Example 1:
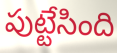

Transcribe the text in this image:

పుట్టేసింది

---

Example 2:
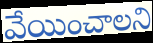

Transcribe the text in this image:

వేయించాలని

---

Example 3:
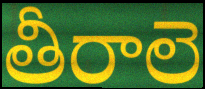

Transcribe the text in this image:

తీరాలె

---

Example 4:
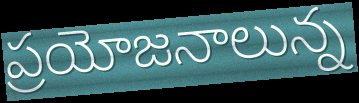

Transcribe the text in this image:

ప్రయోజనాలున్న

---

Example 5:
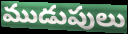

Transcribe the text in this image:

ముడుపులు